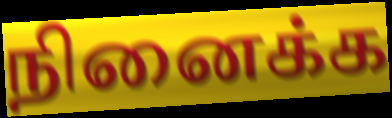
நினைக்க